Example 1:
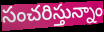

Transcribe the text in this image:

సంచరిస్తున్నాం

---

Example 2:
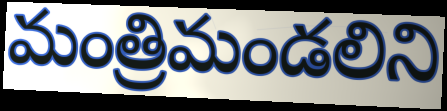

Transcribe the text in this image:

మంత్రిమండలిని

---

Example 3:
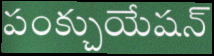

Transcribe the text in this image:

పంక్చుయేషన్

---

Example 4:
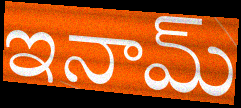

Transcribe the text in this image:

ఇనామ్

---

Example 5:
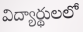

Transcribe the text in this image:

విద్యార్థులలో